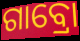
ଗାବ୍ରୋ